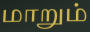
மாறும்